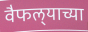
वैफल्याच्या